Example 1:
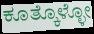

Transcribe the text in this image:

ಕೂತ್ಕೊಳ್ಳೋ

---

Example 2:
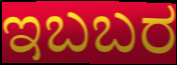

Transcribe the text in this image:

ಇಬಬರ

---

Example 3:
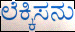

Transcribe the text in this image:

ಲೆಕ್ಕಿಸನು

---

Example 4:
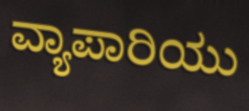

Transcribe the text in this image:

ವ್ಯಾಪಾರಿಯು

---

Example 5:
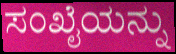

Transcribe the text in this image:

ಸಂಖೈಯನ್ನು